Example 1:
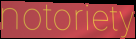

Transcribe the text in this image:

notoriety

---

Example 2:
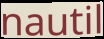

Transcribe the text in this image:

nautil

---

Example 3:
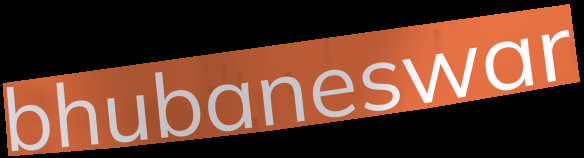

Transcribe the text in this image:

bhubaneswar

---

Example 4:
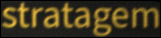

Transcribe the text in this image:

stratagem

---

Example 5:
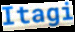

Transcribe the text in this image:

Itagi